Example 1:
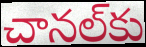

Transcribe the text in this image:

చానల్‌కు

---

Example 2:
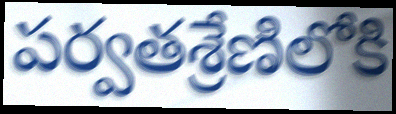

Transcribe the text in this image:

పర్వతశ్రేణిలోకి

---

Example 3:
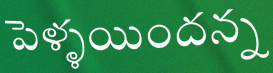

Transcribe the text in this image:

పెళ్ళయిందన్న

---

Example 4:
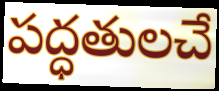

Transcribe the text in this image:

పద్ధతులచే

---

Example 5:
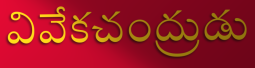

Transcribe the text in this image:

వివేకచంద్రుడు